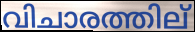
വിചാരത്തില്